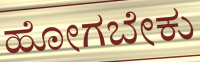
ಹೋಗಬೇಕು